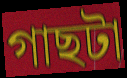
গাছটা